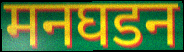
मनघडन